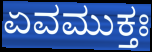
ಏವಮುಕ್ತಃ